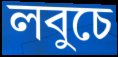
লবুচে